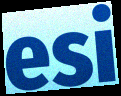
esi